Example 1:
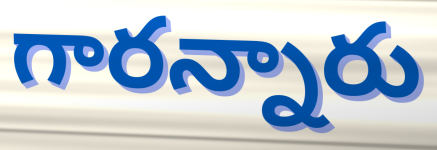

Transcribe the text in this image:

గారన్నారు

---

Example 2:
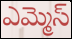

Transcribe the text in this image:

ఎమ్మెస్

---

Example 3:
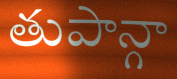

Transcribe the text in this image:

తుపాన్గా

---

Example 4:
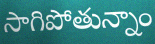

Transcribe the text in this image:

సాగిపోతున్నాం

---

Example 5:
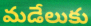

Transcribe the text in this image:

మడేలుకు